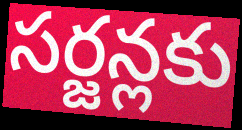
సర్జన్లకు